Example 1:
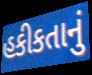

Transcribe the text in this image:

હકીકતાનું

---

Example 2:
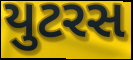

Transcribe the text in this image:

યુટરસ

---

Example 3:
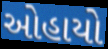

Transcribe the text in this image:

ઓહાયો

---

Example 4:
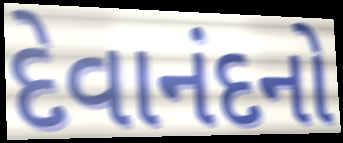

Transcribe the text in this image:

દેવાનંદનો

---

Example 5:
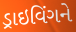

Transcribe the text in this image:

ડ્રાઇવિંગને